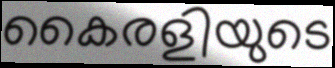
കൈരളിയുടെ